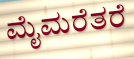
ಮೈಮರೆತರೆ